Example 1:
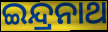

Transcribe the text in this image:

ଇନ୍ଦ୍ରନାଥ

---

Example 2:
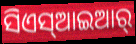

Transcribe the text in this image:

ସିଏସ୍ଆଇଆର୍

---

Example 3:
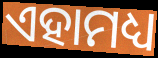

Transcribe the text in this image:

ଏହାମଧ୍ୟ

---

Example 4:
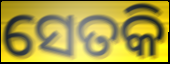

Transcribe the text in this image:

ସେତକି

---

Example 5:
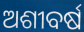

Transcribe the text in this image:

ଅଶୀବର୍ଷ